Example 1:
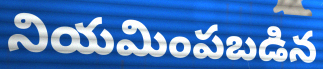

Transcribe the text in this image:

నియమింపబడిన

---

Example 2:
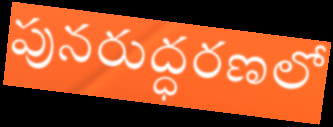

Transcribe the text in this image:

పునరుద్ధరణలో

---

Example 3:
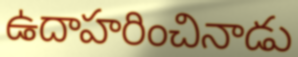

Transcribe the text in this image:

ఉదాహరించినాడు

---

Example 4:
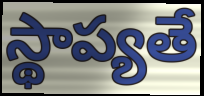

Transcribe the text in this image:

స్థాప్యతే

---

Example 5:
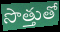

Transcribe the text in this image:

సొత్తుతో